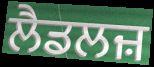
ਲੈਡਲਜ਼